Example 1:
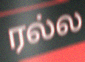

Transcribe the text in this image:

ரல்ல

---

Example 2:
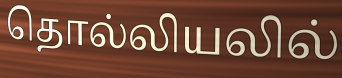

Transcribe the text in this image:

தொல்லியலில்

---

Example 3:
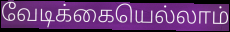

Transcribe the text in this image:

வேடிக்கையெல்லாம்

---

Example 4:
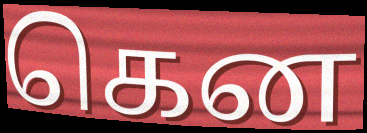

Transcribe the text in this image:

கென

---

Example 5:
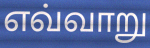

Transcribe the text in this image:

எவ்வாறு